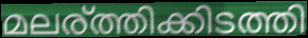
മലര്ത്തിക്കിടത്തി